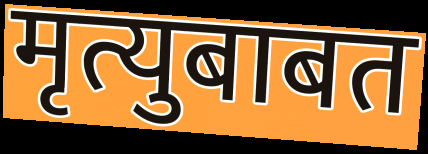
मृत्युबाबत